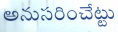
అనుసరించేట్టు